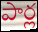
పార్ల